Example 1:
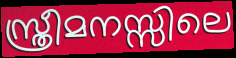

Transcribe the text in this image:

സ്ത്രീമനസ്സിലെ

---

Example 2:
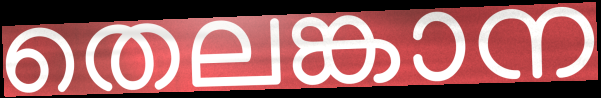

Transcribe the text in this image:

തെലങ്കാന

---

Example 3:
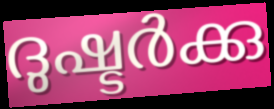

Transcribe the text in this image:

ദുഷ്ടർക്കു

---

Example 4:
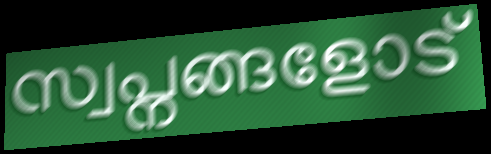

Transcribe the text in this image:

സ്വപ്നങ്ങളോട്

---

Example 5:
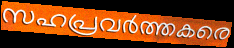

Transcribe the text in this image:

സഹപ്രവർത്തകരെ